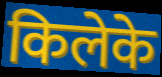
किलेके